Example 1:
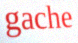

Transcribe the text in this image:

gache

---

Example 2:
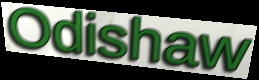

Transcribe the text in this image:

Odishaw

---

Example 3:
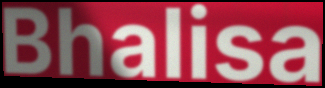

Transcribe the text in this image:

Bhalisa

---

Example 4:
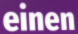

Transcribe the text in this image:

einen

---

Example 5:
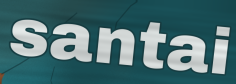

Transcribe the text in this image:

santai